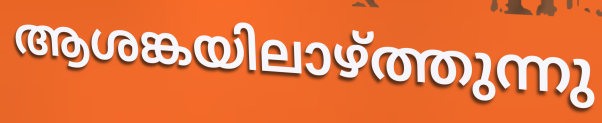
ആശങ്കയിലാഴ്ത്തുന്നു